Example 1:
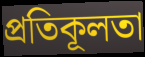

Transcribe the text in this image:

প্রতিকূলতা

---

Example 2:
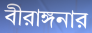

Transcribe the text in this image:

বীরাঙ্গনার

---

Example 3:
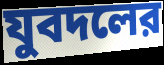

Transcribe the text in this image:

যুবদলের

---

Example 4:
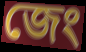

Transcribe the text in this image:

জেং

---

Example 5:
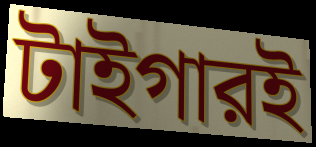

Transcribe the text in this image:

টাইগারই